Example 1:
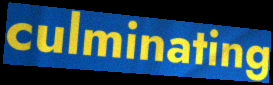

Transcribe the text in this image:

culminating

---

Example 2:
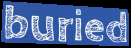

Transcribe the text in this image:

buried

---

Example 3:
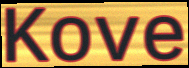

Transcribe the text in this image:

Kove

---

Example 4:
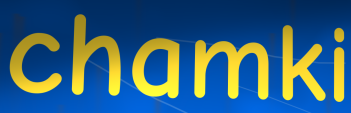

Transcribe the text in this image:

chamki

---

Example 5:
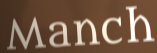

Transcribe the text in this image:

Manch